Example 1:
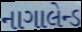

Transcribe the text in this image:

નાગાલેન્ડ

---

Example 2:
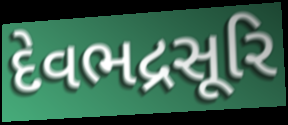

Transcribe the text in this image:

દેવભદ્રસૂરિ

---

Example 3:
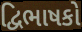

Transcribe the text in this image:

દ્વિભાષકો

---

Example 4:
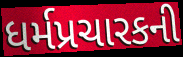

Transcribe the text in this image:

ધર્મપ્રચારકની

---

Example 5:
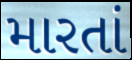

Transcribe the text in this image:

મારતાં